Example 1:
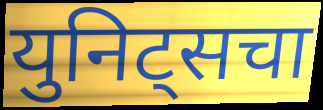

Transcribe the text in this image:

युनिट्सचा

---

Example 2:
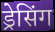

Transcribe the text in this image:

ड्रेसिंग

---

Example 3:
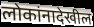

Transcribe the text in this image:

लोकांनादेखील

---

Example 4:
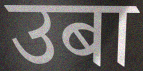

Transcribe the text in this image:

उबा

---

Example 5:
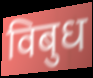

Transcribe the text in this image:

विबुध